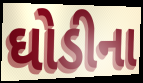
ઘોડીના